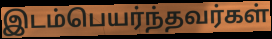
இடம்பெயர்ந்தவர்கள்